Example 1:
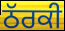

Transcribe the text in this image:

ਠੱਰਕੀ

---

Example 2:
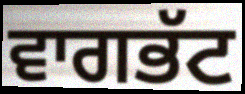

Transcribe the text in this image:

ਵਾਗਭੱਟ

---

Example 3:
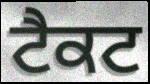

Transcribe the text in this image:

ਟੈਕਟ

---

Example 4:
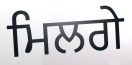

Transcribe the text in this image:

ਮਿਲਗੇ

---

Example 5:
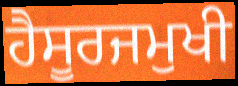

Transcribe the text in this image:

ਹੈਸੂਰਜਮੁਖੀ